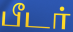
பீடர்